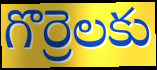
గొర్రెలకు